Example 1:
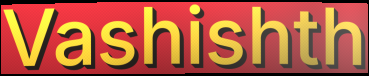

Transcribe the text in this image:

Vashishth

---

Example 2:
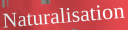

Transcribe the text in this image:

Naturalisation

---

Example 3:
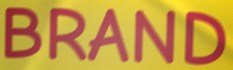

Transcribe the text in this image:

BRAND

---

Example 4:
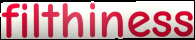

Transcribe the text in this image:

filthiness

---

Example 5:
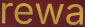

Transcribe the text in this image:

rewa